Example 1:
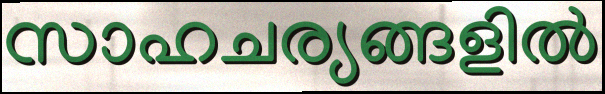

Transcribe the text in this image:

സാഹചര്യങ്ങളിൽ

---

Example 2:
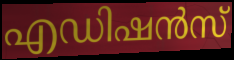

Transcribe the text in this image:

എഡിഷൻസ്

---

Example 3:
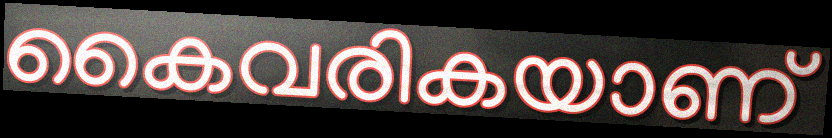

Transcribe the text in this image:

കൈവരികയാണ്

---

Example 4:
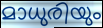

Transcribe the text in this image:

മാധുരിയും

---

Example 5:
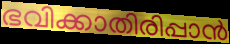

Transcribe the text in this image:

ഭവിക്കാതിരിപ്പാൻ